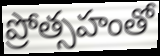
ప్రోత్సహంతో